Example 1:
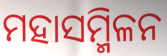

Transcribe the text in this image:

ମହାସମ୍ମିଳନ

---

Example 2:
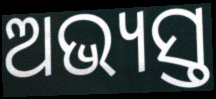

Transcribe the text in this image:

ଅଭ୍ୟସ୍ତ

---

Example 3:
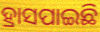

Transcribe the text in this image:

ହ୍ରାସପାଇଛି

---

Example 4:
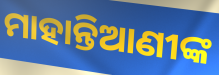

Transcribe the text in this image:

ମାହାନ୍ତିଆଣୀଙ୍କ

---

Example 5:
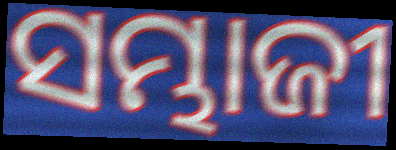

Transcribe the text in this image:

ସମ୍ଭାଜୀ